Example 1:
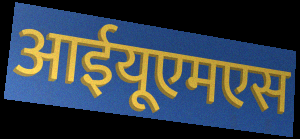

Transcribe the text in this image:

आईयूएमएस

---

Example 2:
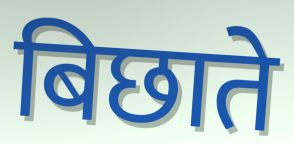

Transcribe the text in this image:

बिछाते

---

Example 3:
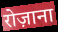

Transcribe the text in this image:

रोज़ाना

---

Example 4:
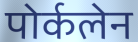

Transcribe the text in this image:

पोर्कलेन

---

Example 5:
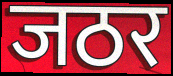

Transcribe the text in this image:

जठर